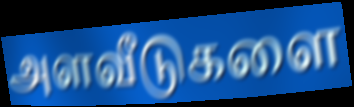
அளவீடுகளை